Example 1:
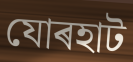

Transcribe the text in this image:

যোৰহাট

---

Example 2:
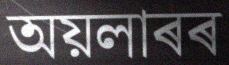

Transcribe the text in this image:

অয়লাৰৰ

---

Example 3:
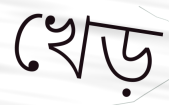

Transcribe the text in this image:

খেড়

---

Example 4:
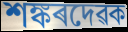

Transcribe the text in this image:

শঙ্কৰদেৱক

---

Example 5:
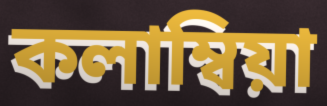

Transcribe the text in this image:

কলাম্বিয়া